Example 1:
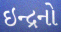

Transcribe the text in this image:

ઇન્દ્રનો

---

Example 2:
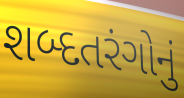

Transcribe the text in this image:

શબ્દતરંગોનું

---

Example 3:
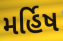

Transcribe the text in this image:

મર્હિષ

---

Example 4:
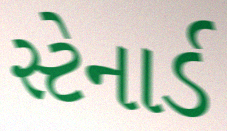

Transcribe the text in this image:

સ્ટેનાર્ડ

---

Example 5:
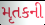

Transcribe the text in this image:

મૃતકની